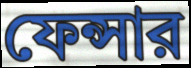
ফেন্সার